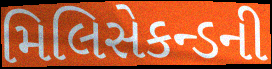
મિલિસેકન્ડની